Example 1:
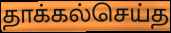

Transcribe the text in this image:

தாக்கல்செய்த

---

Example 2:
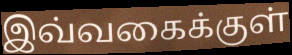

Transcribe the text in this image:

இவ்வகைக்குள்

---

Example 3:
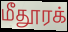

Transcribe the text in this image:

மீதூரக்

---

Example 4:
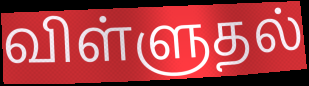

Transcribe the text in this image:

விள்ளுதல்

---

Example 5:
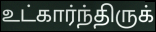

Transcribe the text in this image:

உட்கார்ந்திருக்